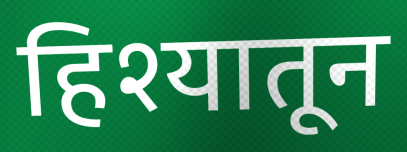
हिश्यातून